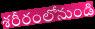
శరీరంలోనుండి